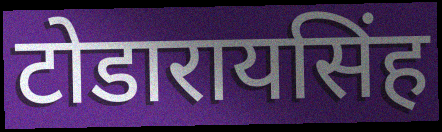
टोडारायसिंह